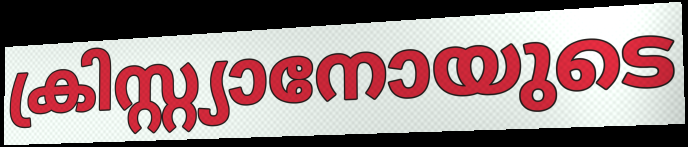
ക്രിസ്റ്റ്യാനോയുടെ